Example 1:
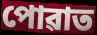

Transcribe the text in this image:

পোৱাত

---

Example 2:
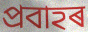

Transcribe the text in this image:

প্ৰবাহৰ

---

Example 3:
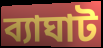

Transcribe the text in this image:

ব্যাঘাট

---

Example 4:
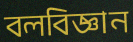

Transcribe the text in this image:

বলবিজ্ঞান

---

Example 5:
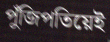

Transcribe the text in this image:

পুঁজিপতিয়েই